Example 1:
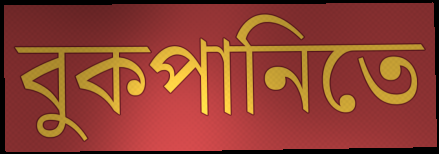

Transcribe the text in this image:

বুকপানিতে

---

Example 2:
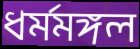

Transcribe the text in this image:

ধর্মমঙ্গল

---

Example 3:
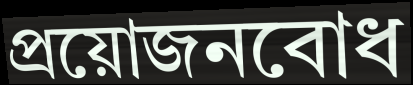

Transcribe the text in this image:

প্রয়োজনবোধ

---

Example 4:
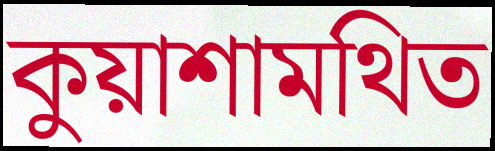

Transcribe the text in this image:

কুয়াশামথিত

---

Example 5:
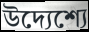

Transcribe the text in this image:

উদ্যেশ্যে